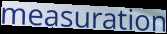
measuration